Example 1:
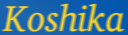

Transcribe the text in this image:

Koshika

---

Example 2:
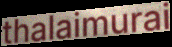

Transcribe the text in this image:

thalaimurai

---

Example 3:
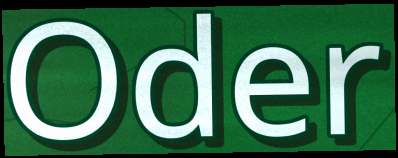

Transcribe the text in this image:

Oder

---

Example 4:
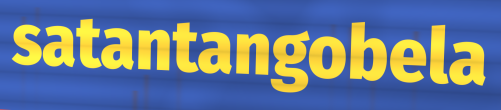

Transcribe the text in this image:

satantangobela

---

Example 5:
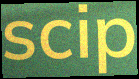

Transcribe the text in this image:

scip